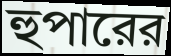
হুপারের